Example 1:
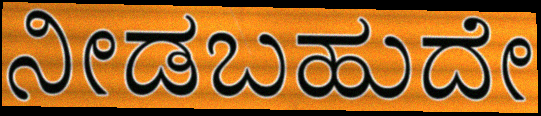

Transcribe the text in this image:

ನೀಡಬಹುದೇ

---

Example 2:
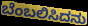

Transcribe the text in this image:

ಬೆಂಬಲಿಸಿದನು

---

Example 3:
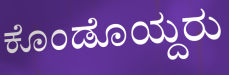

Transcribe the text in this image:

ಕೊಂಡೊಯ್ದರು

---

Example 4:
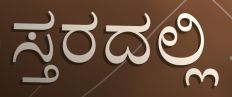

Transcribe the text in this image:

ಸ್ತರದಲ್ಲಿ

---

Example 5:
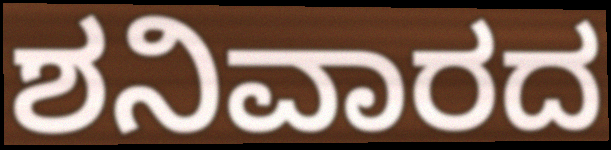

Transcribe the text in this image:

ಶನಿವಾರದ